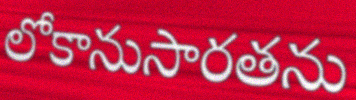
లోకానుసారతను